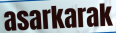
asarkarak